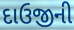
દાઉજીની